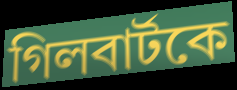
গিলবার্টকে